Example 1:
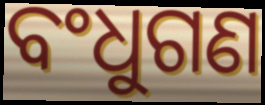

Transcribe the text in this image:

ବଂଧୁଗଣ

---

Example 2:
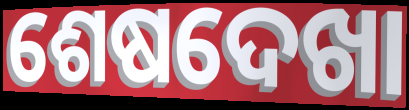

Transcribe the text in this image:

ଶେଷଦେଖା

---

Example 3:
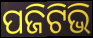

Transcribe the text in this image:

ପଜିଟିଭି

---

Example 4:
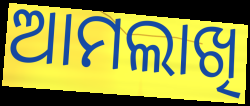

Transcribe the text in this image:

ଆମଲାଖି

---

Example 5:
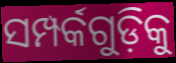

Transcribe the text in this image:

ସମ୍ପର୍କଗୁଡ଼ିକୁ